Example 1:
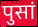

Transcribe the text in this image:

पुसां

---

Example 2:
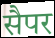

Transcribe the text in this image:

सैपर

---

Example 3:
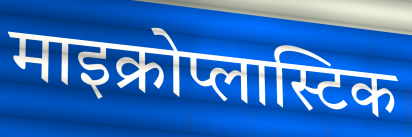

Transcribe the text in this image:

माइक्रोप्लास्टिक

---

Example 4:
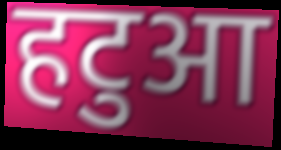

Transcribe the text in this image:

हटुआ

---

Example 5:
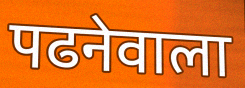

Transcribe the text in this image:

पढनेवाला